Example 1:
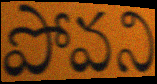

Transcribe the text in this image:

పోవని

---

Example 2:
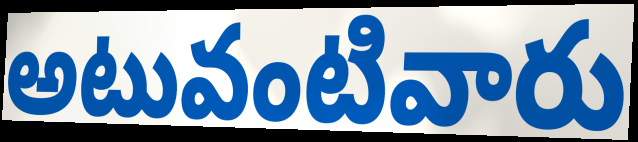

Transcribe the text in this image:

అటువంటివారు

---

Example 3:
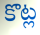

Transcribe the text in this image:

కొట్ల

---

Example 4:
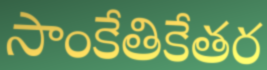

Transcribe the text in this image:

సాంకేతికేతర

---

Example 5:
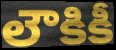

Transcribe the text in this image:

లౌకికీ